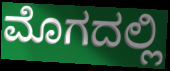
ಮೊಗದಲ್ಲಿ